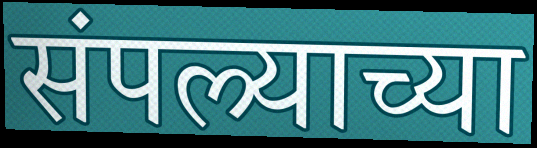
संपल्याच्या